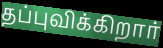
தப்புவிக்கிறார்